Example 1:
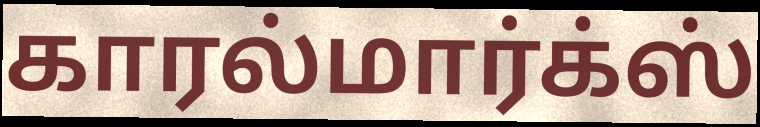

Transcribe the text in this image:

காரல்மார்க்ஸ்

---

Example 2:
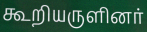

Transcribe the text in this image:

கூறியருளினர்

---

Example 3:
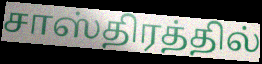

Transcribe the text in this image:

சாஸ்திரத்தில்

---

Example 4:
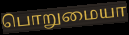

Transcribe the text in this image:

பொறுமையா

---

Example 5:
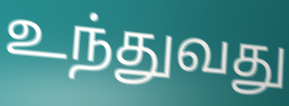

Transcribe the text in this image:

உந்துவது